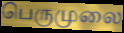
பெருமுலை